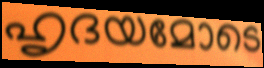
ഹൃദയമോടെ